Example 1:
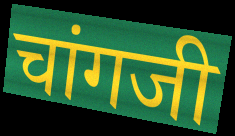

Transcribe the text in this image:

चांगजी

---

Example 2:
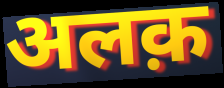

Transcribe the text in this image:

अलक़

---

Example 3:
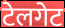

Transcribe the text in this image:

टेलगेट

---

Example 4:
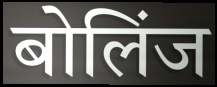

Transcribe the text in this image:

बोलिंज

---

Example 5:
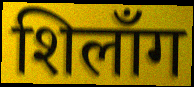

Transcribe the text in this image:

शिलाँग